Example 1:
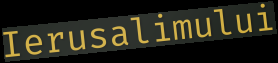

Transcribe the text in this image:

Ierusalimului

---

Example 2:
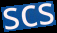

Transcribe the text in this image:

scs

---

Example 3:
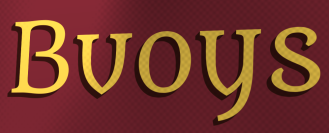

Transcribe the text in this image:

Buoys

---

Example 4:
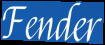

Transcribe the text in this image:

Fender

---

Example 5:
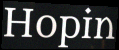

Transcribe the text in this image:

Hopin